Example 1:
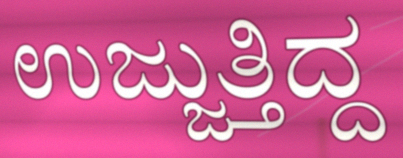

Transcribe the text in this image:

ಉಜ್ಜುತ್ತಿದ್ದ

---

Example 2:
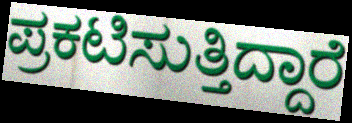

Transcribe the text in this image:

ಪ್ರಕಟಿಸುತ್ತಿದ್ದಾರೆ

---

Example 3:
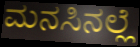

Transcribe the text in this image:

ಮನಸಿನಲ್ಲೆ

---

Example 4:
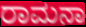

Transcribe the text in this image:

ರಾಮನಾ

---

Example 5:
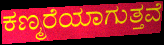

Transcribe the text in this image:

ಕಣ್ಮರೆಯಾಗುತ್ತವೆ